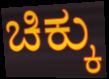
ಚಿಕ್ಕು